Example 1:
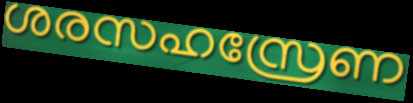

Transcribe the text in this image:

ശരസഹസ്രേണ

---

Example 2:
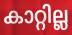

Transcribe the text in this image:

കാറ്റില്ല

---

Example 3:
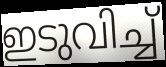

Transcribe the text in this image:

ഇടുവിച്ച്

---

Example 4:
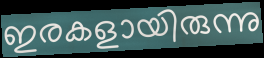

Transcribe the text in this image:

ഇരകളായിരുന്നു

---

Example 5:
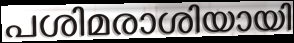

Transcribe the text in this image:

പശിമരാശിയായി